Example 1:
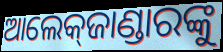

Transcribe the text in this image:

ଆଲେକ୍‌ଜାଣ୍ଡାରଙ୍କୁ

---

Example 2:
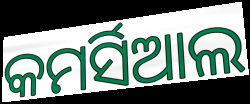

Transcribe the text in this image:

କମର୍ସିଆଲ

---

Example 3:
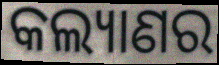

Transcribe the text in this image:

କଲ୍ୟାଣର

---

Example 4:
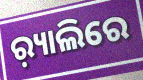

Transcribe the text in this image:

ର଼୍ୟାଲିରେ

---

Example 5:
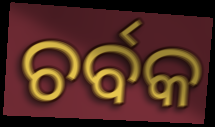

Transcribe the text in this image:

ଚର୍ବକ